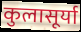
कुलासूर्या